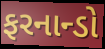
ફરનાન્ડો